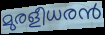
മുരളീധരൻ